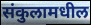
संकुलामधील